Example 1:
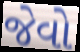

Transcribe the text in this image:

જેવો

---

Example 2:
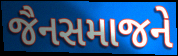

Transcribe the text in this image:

જૈનસમાજને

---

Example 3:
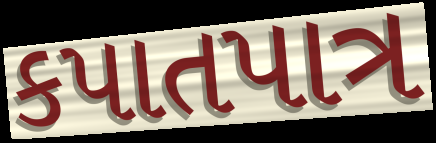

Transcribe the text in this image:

કપાતપાત્ર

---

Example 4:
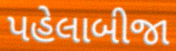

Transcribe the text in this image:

પહેલાબીજા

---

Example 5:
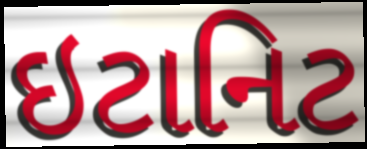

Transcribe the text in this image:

ઇટાનિટ